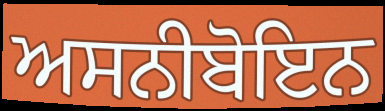
ਅਸਨੀਬੋਇਨ